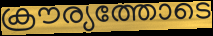
ക്രൗര്യത്തോടെ